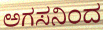
ಅಗಸನಿಂದ